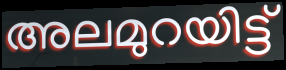
അലമുറയിട്ട്